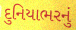
દુનિયાભરનું